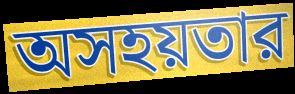
অসহয়তার